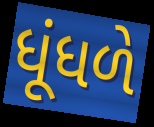
ધૂંધળે